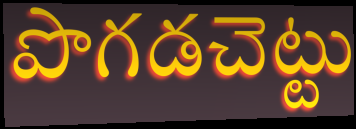
పొగడచెట్టు